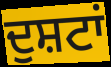
ਦੁਸ਼ਟਾਂ